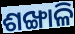
ଶଙ୍ଖାଳି